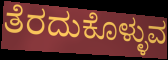
ತೆರದುಕೊಳ್ಳುವ